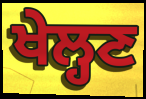
ਖੇਲ੍ਹਣ